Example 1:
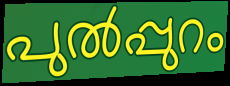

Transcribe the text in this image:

പുൽപ്പുറം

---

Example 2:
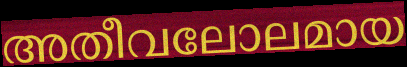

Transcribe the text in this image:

അതീവലോലമായ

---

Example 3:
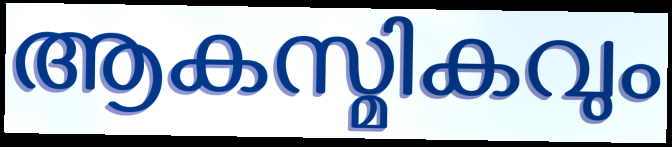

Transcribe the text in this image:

ആകസ്മികവും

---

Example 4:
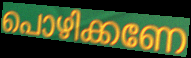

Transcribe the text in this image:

പൊഴിക്കണേ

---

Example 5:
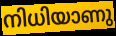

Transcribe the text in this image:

നിധിയാണു